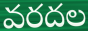
వరదల